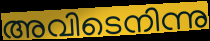
അവിടെനിന്നു